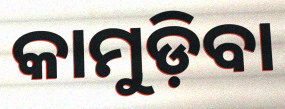
କାମୁଡ଼ିବା